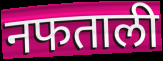
नफताली